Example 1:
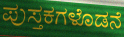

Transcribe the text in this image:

ಪುಸ್ತಕಗಳೊಡನೆ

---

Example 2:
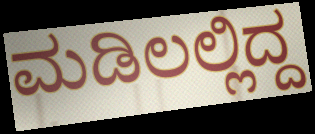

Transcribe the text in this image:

ಮಡಿಲಲ್ಲಿದ್ದ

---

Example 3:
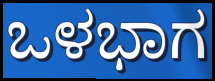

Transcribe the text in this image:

ಒಳಭಾಗ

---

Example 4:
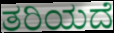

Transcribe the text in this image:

ತರಿಯದೆ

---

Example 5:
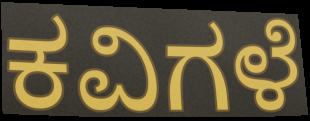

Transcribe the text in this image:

ಕವಿಗಳೆ